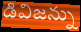
డివిజన్ను